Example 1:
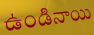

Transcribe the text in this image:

ఉండినాయి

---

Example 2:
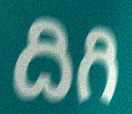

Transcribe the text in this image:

దిగి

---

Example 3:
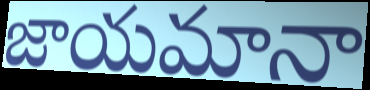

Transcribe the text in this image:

జాయమానా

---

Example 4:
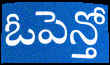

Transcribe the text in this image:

ఓపెన్తో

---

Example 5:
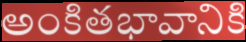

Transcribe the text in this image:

అంకితభావానికి